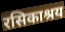
रसिकाश्रय